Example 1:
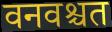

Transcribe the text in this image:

वनवश्चत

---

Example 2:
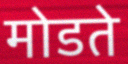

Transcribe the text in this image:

मोडते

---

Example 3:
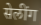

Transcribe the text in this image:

सेलींग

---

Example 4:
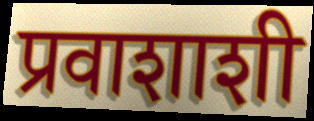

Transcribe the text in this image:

प्रवाशाशी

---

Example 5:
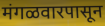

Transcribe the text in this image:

मंगळवारपासून